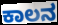
ಕಾಲನ